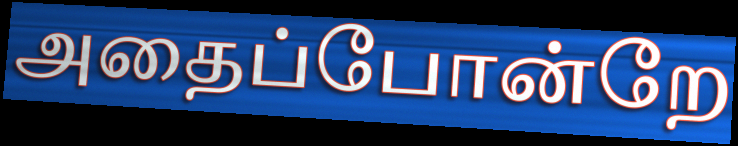
அதைப்போன்றே